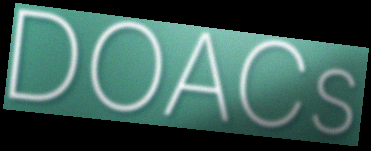
DOACs